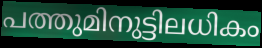
പത്തുമിനുട്ടിലധികം